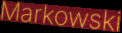
Markowski